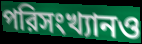
পরিসংখ্যানও